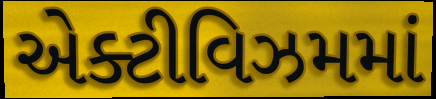
એક્ટીવિઝમમાં